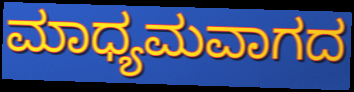
ಮಾಧ್ಯಮವಾಗದ